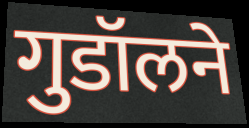
गुडॉलने